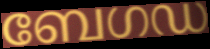
ബേഗഡ